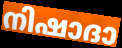
നിഷാദാ